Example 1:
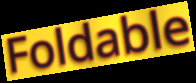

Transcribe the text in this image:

Foldable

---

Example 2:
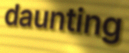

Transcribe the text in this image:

daunting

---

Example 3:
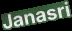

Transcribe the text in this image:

Janasri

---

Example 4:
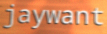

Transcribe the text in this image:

jaywant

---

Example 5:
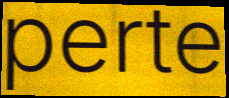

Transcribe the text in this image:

perte